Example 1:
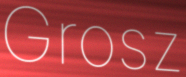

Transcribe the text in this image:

Grosz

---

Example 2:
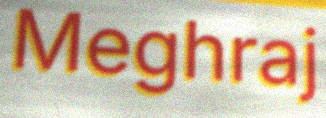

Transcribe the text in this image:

Meghraj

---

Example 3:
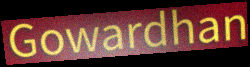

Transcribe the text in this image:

Gowardhan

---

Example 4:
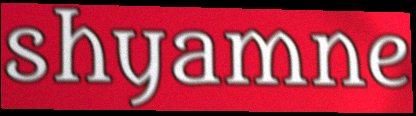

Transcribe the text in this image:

shyamne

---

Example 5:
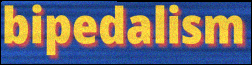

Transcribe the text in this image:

bipedalism